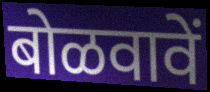
बोळवावें